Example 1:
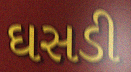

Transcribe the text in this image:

ઘસડી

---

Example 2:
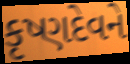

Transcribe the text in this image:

કૃષ્ણદેવને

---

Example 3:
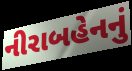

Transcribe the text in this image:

નીરાબહેનનું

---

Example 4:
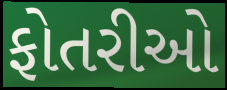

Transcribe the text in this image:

ફોતરીઓ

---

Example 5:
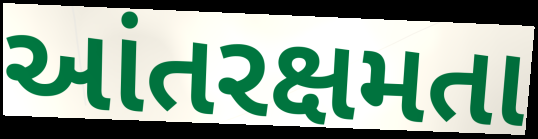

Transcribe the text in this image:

આંતરક્ષમતા